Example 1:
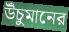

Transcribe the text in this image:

উঁচুমানের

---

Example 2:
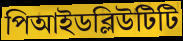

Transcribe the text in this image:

পিআইডব্লিউটিটি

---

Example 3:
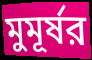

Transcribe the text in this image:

মুমূর্ষর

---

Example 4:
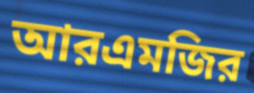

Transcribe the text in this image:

আরএমজির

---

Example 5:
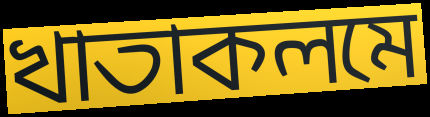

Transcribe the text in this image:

খাতাকলমে